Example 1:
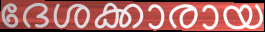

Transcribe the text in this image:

ദേശക്കാരായ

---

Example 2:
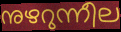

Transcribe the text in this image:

നുഴറുന്നീല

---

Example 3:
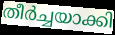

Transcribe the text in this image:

തീർച്ചയാക്കി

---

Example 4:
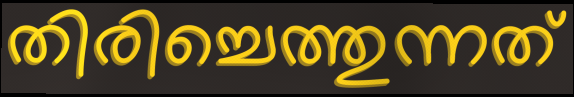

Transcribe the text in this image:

തിരിച്ചെത്തുന്നത്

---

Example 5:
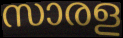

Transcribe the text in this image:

സാരള